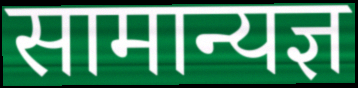
सामान्यज्ञ